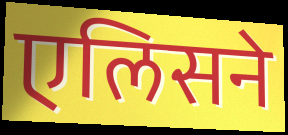
एलिसने